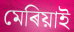
মেৰিয়াই